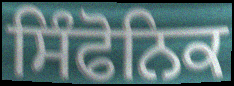
ਸਿੰਫੋਨਿਕ